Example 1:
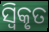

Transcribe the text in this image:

ସ୍ୱିକୃତ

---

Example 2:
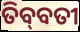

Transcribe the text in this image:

ତିବ୍‌ବତୀ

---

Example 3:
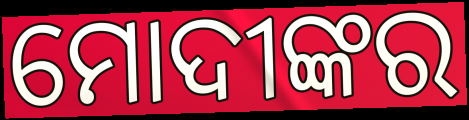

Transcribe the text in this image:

ମୋଦୀଙ୍କର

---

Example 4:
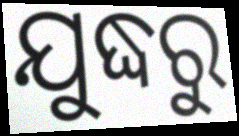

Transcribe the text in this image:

ଯୁଦ୍ଧରୁ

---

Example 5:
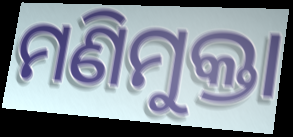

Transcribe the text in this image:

ମଣିମୁକ୍ତା